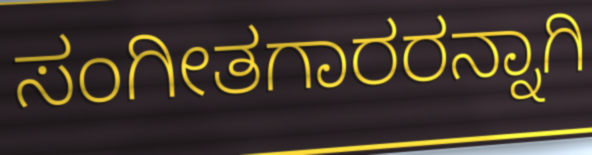
ಸಂಗೀತಗಾರರನ್ನಾಗಿ